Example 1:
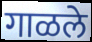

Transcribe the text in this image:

गाळले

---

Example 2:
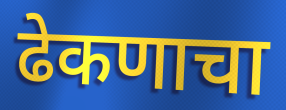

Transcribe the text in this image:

ढेकणाचा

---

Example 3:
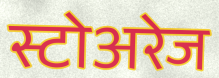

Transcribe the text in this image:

स्टोअरेज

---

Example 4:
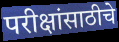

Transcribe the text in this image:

परीक्षांसाठीचे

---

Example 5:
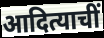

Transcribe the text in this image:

आदित्याचीं